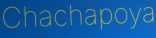
Chachapoya